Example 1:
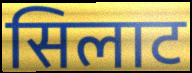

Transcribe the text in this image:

सिलाट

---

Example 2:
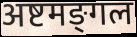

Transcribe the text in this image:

अष्टमङ्गल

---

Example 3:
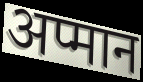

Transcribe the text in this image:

अप्मान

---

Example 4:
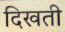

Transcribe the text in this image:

दिखती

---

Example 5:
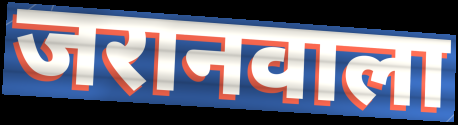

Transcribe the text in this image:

जरानवाला